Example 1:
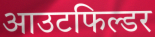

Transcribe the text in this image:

आउटफिल्डर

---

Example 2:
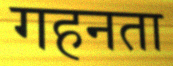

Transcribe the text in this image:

गहनता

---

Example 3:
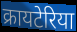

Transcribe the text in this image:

क्रायटेरिया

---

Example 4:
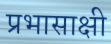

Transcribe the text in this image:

प्रभासाक्षी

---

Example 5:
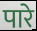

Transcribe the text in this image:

पारे